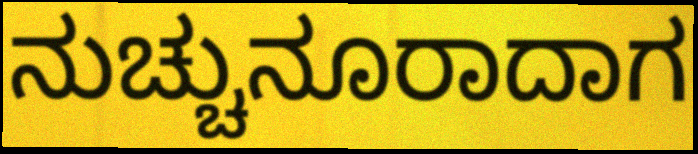
ನುಚ್ಚುನೂರಾದಾಗ